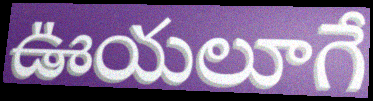
ఊయలూగే